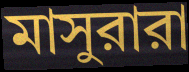
মাসুরারা